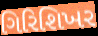
ગિરિશિખર